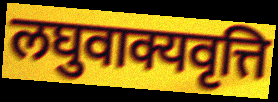
लघुवाक्यवृत्ति